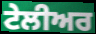
ਟੇਲੀਅਰ